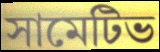
সামেটিভ